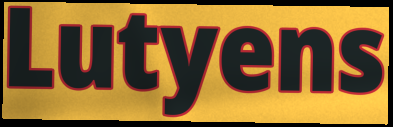
Lutyens